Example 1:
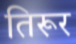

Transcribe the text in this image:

तिरूर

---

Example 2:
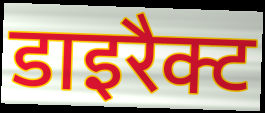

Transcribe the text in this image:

डाइरैक्ट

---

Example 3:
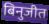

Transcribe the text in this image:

बिनुजीत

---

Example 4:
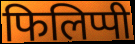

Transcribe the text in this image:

फिलिप्पी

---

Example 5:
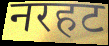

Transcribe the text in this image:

नरहट